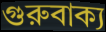
গুরুবাক্য